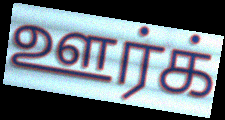
ஊர்க்